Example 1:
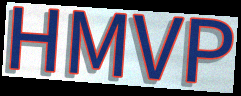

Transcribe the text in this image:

HMVP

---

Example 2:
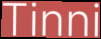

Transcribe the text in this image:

Tinni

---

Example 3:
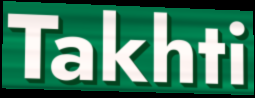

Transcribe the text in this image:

Takhti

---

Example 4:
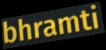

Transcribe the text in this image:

bhramti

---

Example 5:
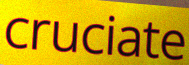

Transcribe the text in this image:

cruciate